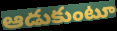
ఆడుకుంటూ